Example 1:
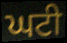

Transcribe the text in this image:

ਘਟੀ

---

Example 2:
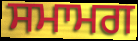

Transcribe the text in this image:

ਸਮਾਮਗ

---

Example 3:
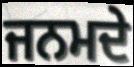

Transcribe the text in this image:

ਜਨਮਦੇ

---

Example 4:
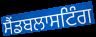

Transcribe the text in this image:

ਸੈਂਡਬਲਾਸਟਿੰਗ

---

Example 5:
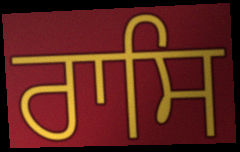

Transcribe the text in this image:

ਰਾਸਿ